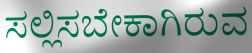
ಸಲ್ಲಿಸಬೇಕಾಗಿರುವ